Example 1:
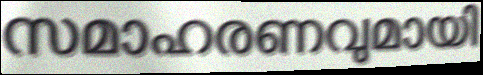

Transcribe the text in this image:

സമാഹരണവുമായി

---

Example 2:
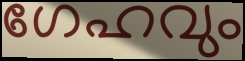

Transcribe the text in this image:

ഗേഹവും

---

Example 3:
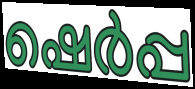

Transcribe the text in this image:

ഷെർപ്പ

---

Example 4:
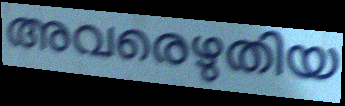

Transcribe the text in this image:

അവരെഴുതിയ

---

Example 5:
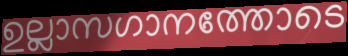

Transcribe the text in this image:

ഉല്ലാസഗാനത്തോടെ